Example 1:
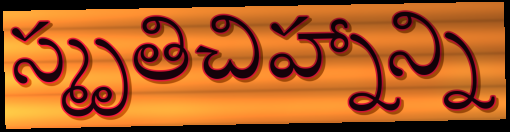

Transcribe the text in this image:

స్మృతిచిహ్నాన్ని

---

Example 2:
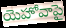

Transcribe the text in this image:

యెహోవాపై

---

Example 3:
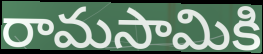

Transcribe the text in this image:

రామసామికి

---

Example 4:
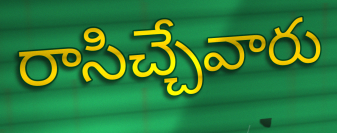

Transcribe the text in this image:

రాసిచ్చేవారు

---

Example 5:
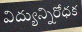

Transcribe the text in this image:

విద్యున్నిరోధక